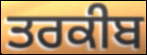
ਤਰਕੀਬ